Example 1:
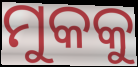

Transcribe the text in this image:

ମୁକକୁ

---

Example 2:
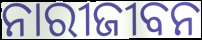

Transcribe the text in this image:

ନାରୀଜୀବନ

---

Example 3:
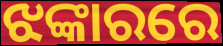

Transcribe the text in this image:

ଝଙ୍କାରରେ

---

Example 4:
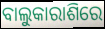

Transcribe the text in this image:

ବାଲୁକାରାଶିରେ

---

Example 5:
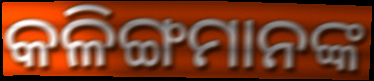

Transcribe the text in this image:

କଳିଙ୍ଗମାନଙ୍କ